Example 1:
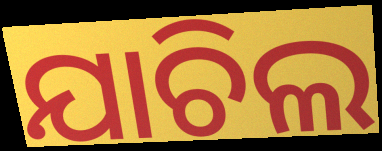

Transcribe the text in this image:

ଯାଚିଲ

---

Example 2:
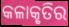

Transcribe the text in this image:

କଳାକୃତିର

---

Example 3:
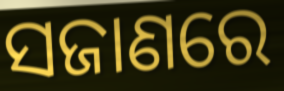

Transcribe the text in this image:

ସଜାଣରେ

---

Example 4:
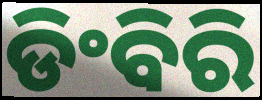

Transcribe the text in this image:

ଡିଂବିରି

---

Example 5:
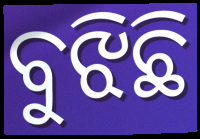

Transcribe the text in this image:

ବୁଝିଛି